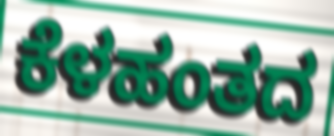
ಕೆಳಹಂತದ